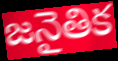
జనైతిక